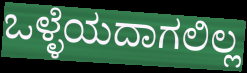
ಒಳ್ಳೆಯದಾಗಲಿಲ್ಲ